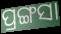
ପ୍ରଙ୍ଗସା